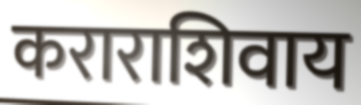
कराराशिवाय